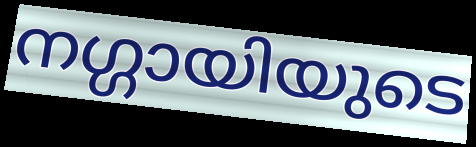
നഗ്ഗായിയുടെ